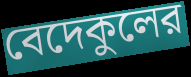
বেদেকুলের